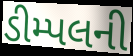
ડીમ્પલની